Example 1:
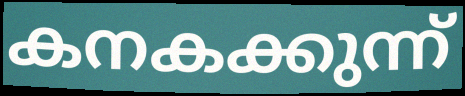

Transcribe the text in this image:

കനകക്കുന്ന്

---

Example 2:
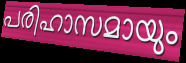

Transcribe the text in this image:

പരിഹാസമായും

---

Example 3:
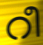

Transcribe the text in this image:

റീ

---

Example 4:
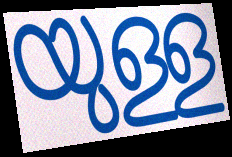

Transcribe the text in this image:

യുള്ള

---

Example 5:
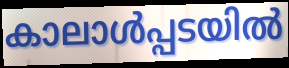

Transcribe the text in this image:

കാലാൾപ്പടയിൽ